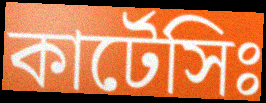
কার্টেসিঃ